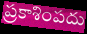
ప్రకాశింపదు